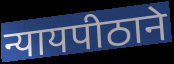
न्यायपीठाने